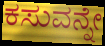
ಕಸುವನ್ನೇ